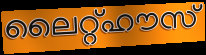
ലൈറ്റ്ഹൗസ്